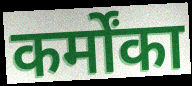
कर्मोंका